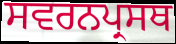
ਸਵਰਨਪ੍ਰਸਥ